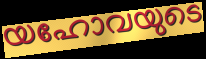
യഹോവയുടെ